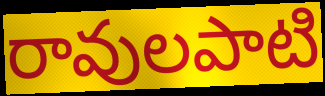
రావులపాటి